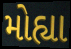
મોહ્યા